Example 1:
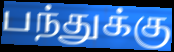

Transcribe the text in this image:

பந்துக்கு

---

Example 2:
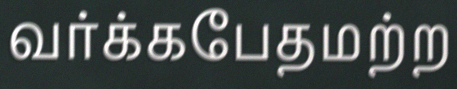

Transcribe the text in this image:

வர்க்கபேதமற்ற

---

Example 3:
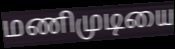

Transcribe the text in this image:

மணிமுடியை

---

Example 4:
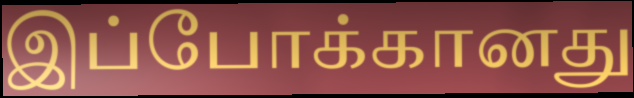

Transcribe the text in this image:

இப்போக்கானது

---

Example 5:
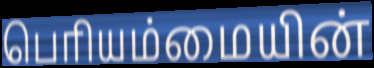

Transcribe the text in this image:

பெரியம்மையின்